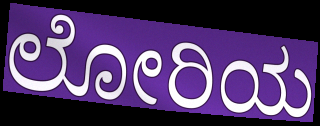
ಲೋರಿಯ